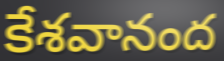
కేశవానంద